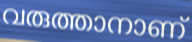
വരുത്താനാണ്